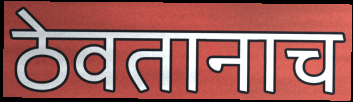
ठेवतानाच